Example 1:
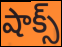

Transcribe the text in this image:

షాక్స్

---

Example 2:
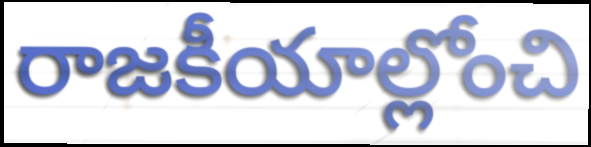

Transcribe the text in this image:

రాజకీయాల్లోంచి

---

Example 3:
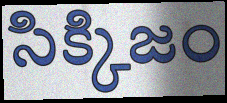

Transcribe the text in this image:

సిక్కిజం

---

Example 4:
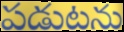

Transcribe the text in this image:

పడుటను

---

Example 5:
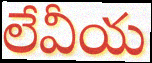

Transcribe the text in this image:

లేవీయ